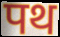
पथ